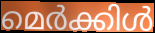
മെർക്കിൾ